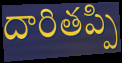
దారితప్పి